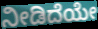
ನೀಡಿದೆಯೇ